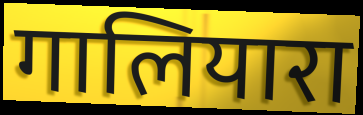
गालियारा